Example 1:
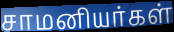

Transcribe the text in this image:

சாமனியர்கள்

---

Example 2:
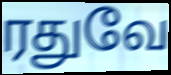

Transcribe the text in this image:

ரதுவே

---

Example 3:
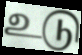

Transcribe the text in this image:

உடு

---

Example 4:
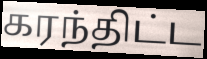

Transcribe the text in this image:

கரந்திட்ட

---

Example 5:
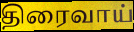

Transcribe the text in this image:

திரைவாய்